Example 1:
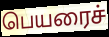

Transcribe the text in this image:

பெயரைச்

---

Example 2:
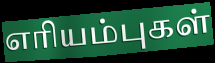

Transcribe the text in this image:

எரியம்புகள்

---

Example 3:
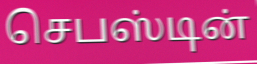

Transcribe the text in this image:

செபஸ்டின்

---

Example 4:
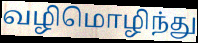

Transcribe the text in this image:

வழிமொழிந்து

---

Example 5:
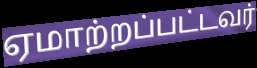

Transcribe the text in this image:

ஏமாற்றப்பட்டவர்